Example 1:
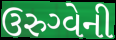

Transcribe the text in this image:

ઉરુગ્વેની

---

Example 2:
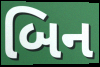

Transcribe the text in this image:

બિન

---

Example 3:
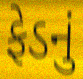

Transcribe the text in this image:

ફેડનું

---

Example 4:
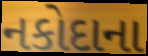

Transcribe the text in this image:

નકોદાના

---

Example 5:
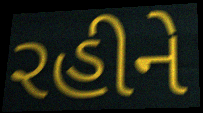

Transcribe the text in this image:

રહીને